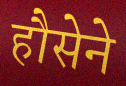
हौसेने